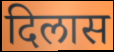
दिलास